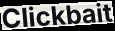
Clickbait